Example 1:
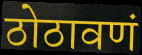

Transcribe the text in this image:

ठोठावणं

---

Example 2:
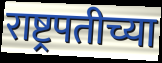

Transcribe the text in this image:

राष्ट्रपतीच्या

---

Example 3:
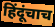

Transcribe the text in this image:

हिंदूंचाच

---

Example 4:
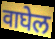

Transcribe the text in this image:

वाघेल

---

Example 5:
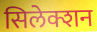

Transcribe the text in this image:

सिलेक्शन